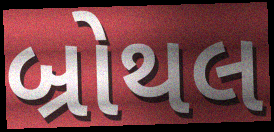
બ્રોથલ